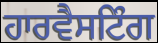
ਹਾਰਵੈਸਟਿੰਗ